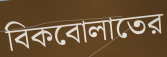
বিকবোলাতের